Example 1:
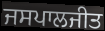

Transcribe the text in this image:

ਜਸਪਾਲਜੀਤ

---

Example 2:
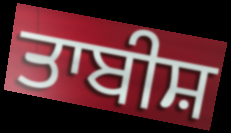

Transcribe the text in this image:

ਤਾਬੀਸ਼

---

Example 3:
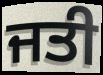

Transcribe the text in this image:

ਜਤੀ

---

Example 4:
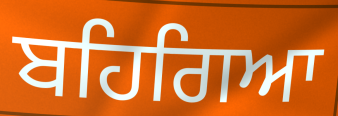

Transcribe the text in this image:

ਬਹਿਗਿਆ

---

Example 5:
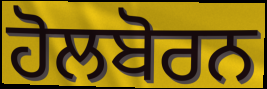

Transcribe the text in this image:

ਹੋਲਬੋਰਨ